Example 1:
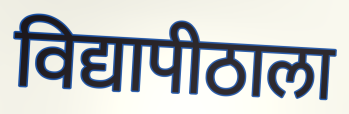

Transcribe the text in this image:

विद्यापीठाला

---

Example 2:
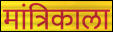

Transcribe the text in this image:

मांत्रिकाला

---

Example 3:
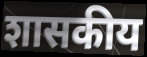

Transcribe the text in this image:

शासकीय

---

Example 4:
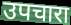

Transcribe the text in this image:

उपचारा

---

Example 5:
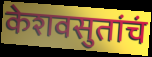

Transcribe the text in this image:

केशवसुतांचं